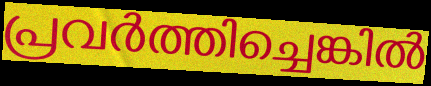
പ്രവർത്തിച്ചെങ്കിൽ